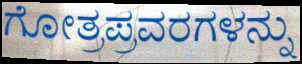
ಗೋತ್ರಪ್ರವರಗಳನ್ನು